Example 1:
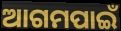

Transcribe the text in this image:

ଆଗମପାଇଁ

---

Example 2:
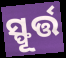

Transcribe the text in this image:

ସ୍ଫୂର୍ତ୍ତ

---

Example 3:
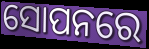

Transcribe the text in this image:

ସୋପନରେ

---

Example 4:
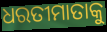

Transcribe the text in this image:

ଧରତୀମାତାକୁ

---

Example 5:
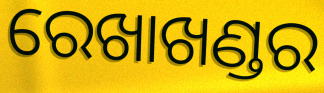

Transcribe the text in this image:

ରେଖାଖଣ୍ଡର